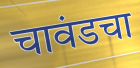
चावंडचा